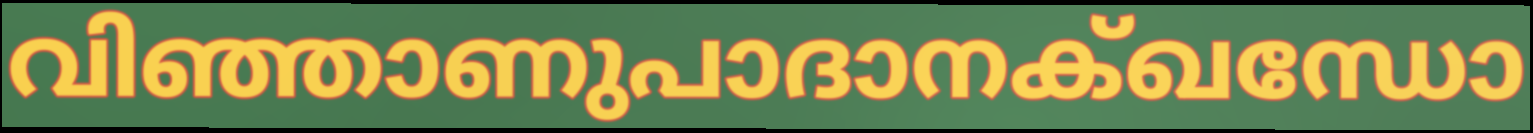
വിഞ്ഞാണുപാദാനക്ഖന്ധോ